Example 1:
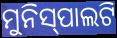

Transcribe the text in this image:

ମୁନିସ୍‍ପାଲଟି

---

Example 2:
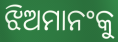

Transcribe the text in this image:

ଝିଅମାନଂକୁ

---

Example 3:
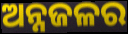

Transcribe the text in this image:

ଅନ୍ନଜଳର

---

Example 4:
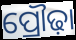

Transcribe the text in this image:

ପ୍ରୌଢ଼ା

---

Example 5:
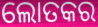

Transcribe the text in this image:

ଲୋତକର